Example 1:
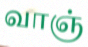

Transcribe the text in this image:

வாஞ்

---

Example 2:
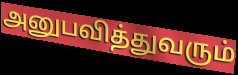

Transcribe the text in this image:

அனுபவித்துவரும்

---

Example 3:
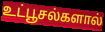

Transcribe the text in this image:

உட்பூசல்களால்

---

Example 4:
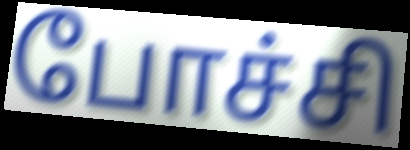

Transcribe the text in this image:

போச்சி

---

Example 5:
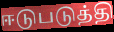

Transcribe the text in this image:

ஈடுபடுத்தி